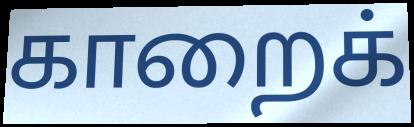
காறைக்